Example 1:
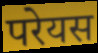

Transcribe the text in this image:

परेयस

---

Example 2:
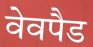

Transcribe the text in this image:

वेवपैड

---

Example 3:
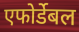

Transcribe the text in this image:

एफोर्डेबल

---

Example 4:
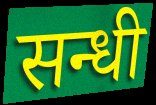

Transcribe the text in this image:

सन्धी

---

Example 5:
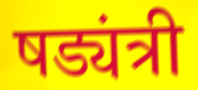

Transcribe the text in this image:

षड्यंत्री